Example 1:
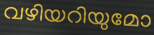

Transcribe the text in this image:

വഴിയറിയുമോ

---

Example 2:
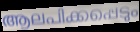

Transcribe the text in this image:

ആലപിക്കപ്പെടും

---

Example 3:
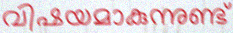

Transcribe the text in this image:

വിഷയമാകുന്നുണ്ട്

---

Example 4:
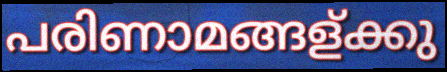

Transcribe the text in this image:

പരിണാമങ്ങള്ക്കു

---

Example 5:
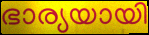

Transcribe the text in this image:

ഭാര്യയായി